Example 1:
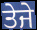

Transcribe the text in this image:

ਤੇਜੇ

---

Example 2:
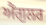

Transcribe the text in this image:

ਐਂਗੁਲਰ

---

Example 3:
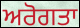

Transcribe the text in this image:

ਅਰੋਗਤਾ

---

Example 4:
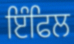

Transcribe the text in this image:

ਇੰਫਿਲ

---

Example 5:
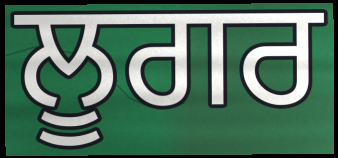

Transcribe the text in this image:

ਲੂਗਰ